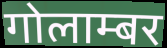
गोलाम्बर